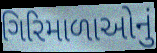
ગિરિમાળાઓનું